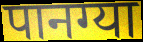
पानग्या